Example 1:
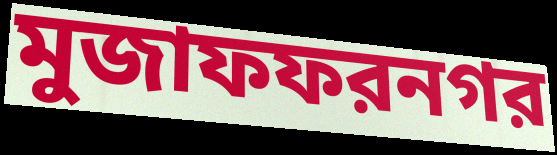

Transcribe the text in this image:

মুজাফফরনগর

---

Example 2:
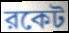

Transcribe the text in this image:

রকেট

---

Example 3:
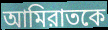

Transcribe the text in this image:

আমিরাতকে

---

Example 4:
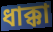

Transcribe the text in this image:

ধাক্কা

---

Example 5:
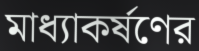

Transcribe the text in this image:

মাধ্যাকর্ষণের